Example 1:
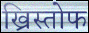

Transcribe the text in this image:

ख्रिस्तोफ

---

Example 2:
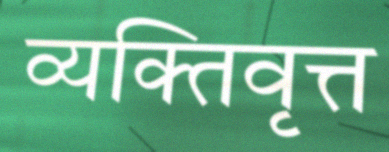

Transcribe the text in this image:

व्यक्तिवृत्त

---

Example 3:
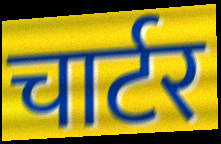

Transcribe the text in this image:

चार्टर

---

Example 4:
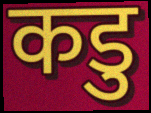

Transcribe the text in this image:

कडु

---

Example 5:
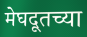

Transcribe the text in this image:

मेघदूतच्या